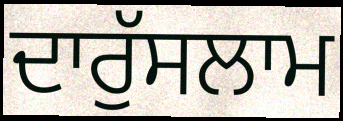
ਦਾਰੁੱਸਲਾਮ